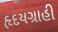
હૃદયગ્રાહી